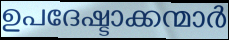
ഉപദേഷ്ടാക്കന്മാർ